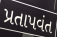
પ્રતાપવંત